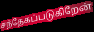
சந்தேகப்படுகிறேன்